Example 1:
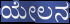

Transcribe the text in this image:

ಯೇಲನ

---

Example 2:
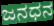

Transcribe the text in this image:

ಜನಧನ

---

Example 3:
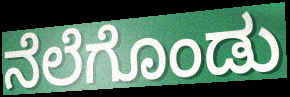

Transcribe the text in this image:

ನೆಲೆಗೊಂಡು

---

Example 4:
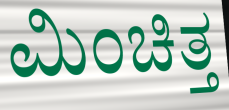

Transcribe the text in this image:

ಮಿಂಚಿತ್ತ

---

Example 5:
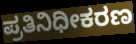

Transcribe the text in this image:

ಪ್ರತಿನಿಧೀಕರಣ